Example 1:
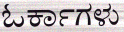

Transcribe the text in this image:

ಓರ್ಕಾಗಳು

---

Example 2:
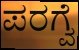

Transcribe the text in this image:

ಪರಗ್ವೆ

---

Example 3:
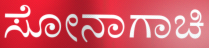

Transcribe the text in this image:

ಸೋನಾಗಾಚಿ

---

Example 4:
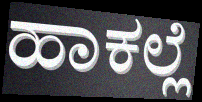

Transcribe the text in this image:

ಹಾಕಲ್ಲೆ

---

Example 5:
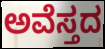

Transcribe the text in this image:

ಅವೆಸ್ತದ